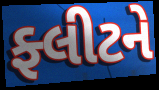
ફ્લીટને